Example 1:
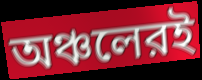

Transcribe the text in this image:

অঞ্চলেরই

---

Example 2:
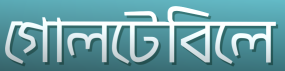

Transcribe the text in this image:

গোলটেবিলে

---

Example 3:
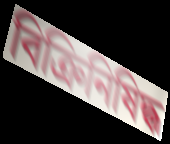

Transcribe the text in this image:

বিক্রিনিষিদ্ধ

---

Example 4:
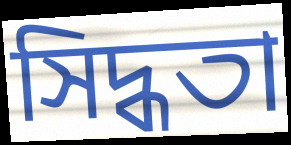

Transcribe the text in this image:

সিদ্ধতা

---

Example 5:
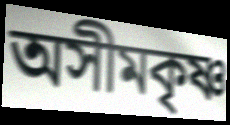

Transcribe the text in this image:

অসীমকৃষ্ণ